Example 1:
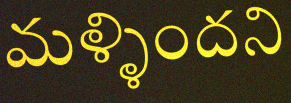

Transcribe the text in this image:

మళ్ళిందని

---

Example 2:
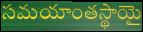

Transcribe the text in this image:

సమయాంతస్థాయై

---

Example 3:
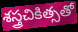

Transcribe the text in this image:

శస్త్రచికిత్సతో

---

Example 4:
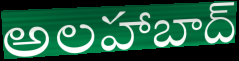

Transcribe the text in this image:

అలహాబాద్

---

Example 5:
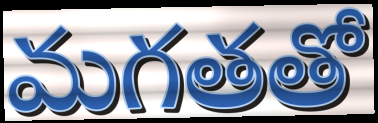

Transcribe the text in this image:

మగతతో